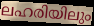
ലഹരിയിലും